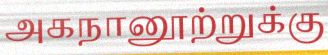
அகநானூற்றுக்கு